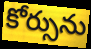
కోర్సును